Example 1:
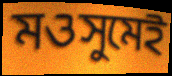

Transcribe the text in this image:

মওসুমেই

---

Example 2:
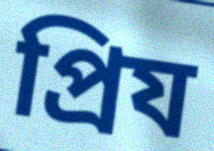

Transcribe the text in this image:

প্রিয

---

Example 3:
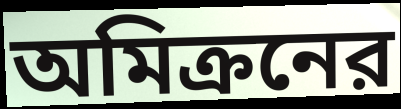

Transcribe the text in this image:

অমিক্রনের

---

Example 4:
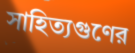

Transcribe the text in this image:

সাহিত্যগুণের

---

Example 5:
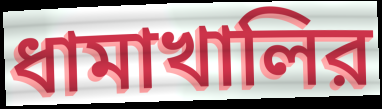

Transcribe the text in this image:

ধামাখালির